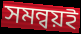
সমন্বয়ই